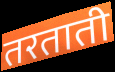
तरताती